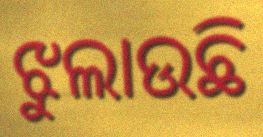
ଝୁଲାଉଛି